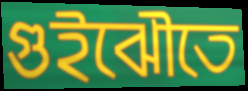
গুইঝৌতে